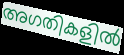
അഗതികളിൽ